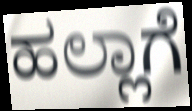
ಹಲ್ಲಾಗೆ